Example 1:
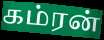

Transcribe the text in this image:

கம்ரன்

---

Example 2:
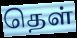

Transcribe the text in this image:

தெள்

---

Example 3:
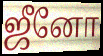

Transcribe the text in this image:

ஜீனோ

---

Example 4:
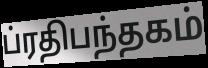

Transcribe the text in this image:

ப்ரதிபந்தகம்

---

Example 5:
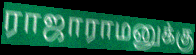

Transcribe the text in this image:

ராஜாராமனுக்கு